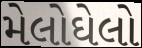
મેલોઘેલો